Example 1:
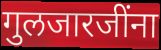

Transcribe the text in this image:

गुलजारजींना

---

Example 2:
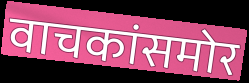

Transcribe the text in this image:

वाचकांसमोर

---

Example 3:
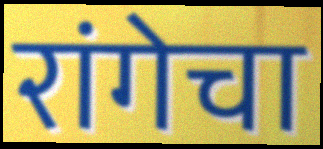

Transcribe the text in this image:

रांगेचा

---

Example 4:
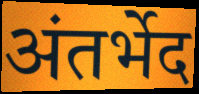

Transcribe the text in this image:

अंतर्भेद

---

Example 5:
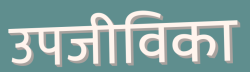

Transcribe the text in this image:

उपजीविका